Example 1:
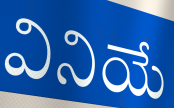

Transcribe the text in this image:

వినియే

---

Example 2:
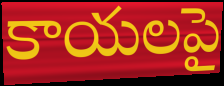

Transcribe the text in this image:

కాయలపై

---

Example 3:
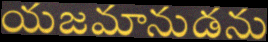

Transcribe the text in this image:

యజమానుడను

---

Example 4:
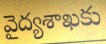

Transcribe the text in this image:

వైద్యశాఖకు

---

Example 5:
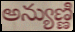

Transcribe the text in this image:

అన్యుణ్ణి